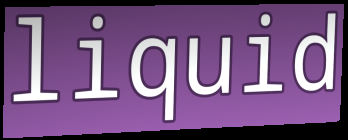
liquid